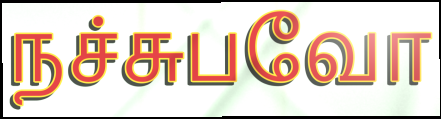
நச்சுபவோ